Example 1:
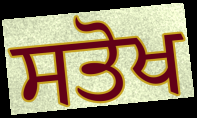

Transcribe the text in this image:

ਸਤੋਖ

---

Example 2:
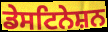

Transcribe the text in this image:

ਡੇਸਟਿਨੇਸ਼ਨ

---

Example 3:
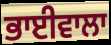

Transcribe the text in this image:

ਭਾਈਵਾਲਾ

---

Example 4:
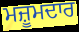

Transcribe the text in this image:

ਮਜ਼ੂਮਦਾਰ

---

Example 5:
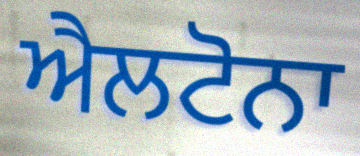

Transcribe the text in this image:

ਐਲਟੋਨਾ